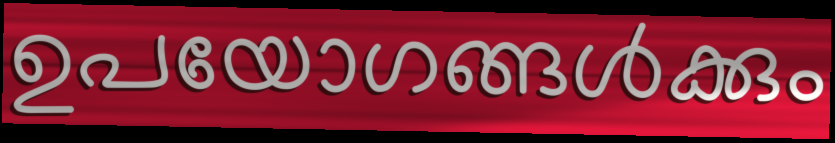
ഉപയോഗങ്ങൾക്കും